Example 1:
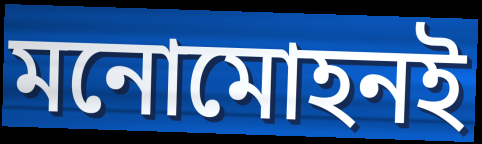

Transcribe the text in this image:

মনোমোহনই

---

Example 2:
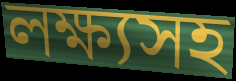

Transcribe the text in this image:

লক্ষ্যসহ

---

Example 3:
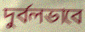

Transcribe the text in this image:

দুর্বলভাবে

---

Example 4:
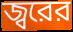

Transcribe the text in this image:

জ্বরের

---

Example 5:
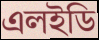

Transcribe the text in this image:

এলইডি